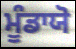
ਮੂੰਡਾਯੋ